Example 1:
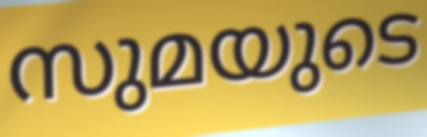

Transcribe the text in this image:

സുമയുടെ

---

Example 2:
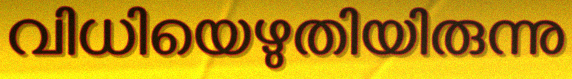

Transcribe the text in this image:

വിധിയെഴുതിയിരുന്നു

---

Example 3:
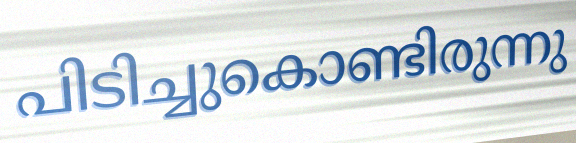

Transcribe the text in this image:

പിടിച്ചുകൊണ്ടിരുന്നു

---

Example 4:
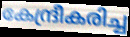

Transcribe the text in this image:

കേന്ദ്രീകരിച്ച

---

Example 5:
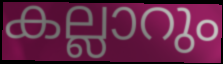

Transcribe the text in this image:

കല്ലാറും